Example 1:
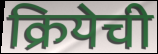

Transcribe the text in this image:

क्रियेची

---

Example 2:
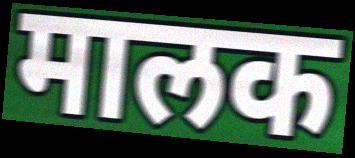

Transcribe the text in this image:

मालक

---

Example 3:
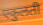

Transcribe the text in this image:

एकुलती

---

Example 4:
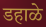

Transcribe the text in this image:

डहाळे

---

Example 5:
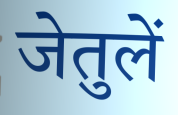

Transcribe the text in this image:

जेतुलें